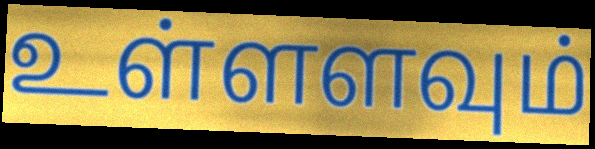
உள்ளளவும்